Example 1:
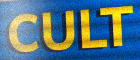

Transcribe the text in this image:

CULT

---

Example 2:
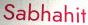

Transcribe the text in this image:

Sabhahit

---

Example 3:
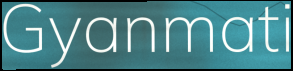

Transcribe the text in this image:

Gyanmati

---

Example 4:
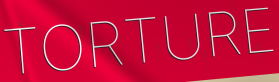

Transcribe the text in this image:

TORTURE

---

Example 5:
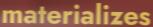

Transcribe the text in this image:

materializes